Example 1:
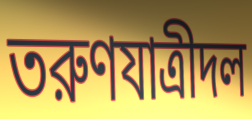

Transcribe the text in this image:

তরুণযাত্রীদল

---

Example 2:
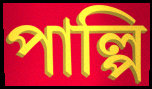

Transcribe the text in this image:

পাল্পি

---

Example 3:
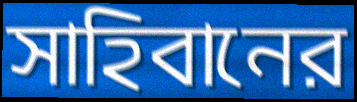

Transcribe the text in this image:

সাহিবানের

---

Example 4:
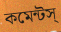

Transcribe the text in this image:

কমেন্টস্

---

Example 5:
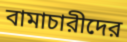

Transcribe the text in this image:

বামাচারীদের